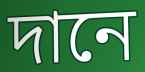
দানে